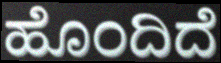
ಹೊಂದಿದೆ